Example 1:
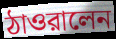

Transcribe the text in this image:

ঠাওরালেন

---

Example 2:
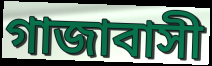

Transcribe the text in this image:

গাজাবাসী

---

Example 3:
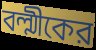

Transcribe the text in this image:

বল্মীকের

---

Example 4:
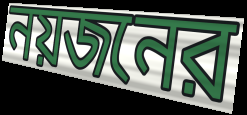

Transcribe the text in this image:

নয়জনের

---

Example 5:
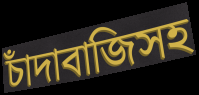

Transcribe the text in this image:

চাঁদাবাজিসহ